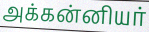
அக்கன்னியர்